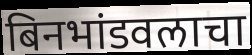
बिनभांडवलाचा